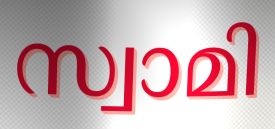
സ്വാമി